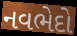
નવભેદો